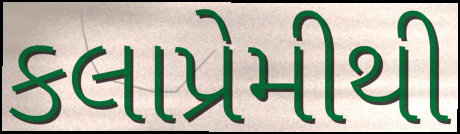
કલાપ્રેમીથી